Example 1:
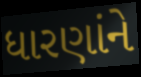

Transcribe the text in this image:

ધારણાંને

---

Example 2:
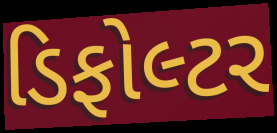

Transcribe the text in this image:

ડિફોલ્ટર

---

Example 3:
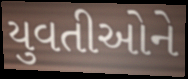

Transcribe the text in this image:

યુવતીઓને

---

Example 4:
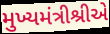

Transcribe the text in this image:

મુખ્યમંત્રીશ્રીએ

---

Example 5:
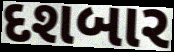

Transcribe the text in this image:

દશબાર